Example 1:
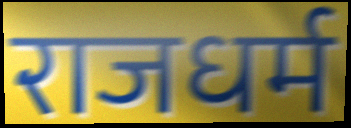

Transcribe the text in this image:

राजधर्म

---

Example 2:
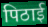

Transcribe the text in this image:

पिठाई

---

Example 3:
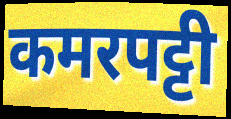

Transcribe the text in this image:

कमरपट्टी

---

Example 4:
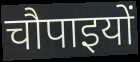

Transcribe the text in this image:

चौपाइयों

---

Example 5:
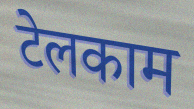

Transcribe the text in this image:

टेलकाम